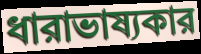
ধারাভাষ্যকার